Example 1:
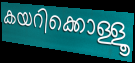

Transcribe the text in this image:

കയറിക്കൊള്ളൂ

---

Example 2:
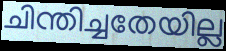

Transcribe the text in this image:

ചിന്തിച്ചതേയില്ല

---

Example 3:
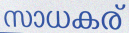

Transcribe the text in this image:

സാധകര്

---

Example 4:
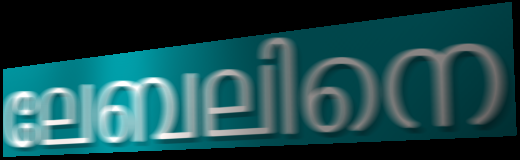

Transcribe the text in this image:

ലേബലിനെ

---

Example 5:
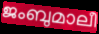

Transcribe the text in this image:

ജംബുമാലീ